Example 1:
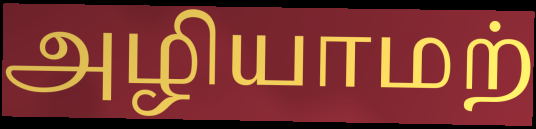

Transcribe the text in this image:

அழியாமற்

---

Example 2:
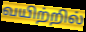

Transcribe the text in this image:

வயிற்றில்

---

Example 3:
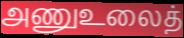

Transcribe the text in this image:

அணுஉலைத்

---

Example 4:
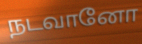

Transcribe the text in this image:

நடவானோ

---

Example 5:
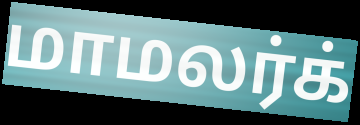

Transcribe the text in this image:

மாமலர்க்